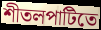
শীতলপাটিতে